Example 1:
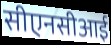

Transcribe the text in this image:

सीएनसीआई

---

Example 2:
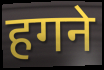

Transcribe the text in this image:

हगने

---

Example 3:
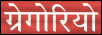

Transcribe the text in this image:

ग्रेगोरियो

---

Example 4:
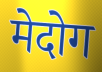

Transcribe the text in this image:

मेदोग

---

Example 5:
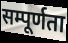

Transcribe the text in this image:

सम्पूर्णता